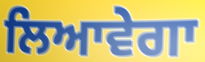
ਲਿਆਵੇਗਾ